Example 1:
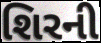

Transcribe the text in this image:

શિરની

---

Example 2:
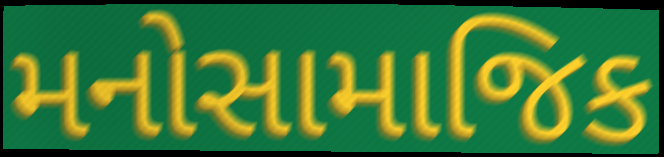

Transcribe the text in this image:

મનોસામાજિક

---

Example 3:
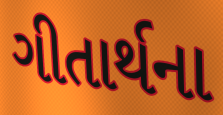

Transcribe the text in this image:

ગીતાર્થના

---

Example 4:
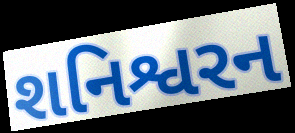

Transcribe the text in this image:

શનિશ્વરન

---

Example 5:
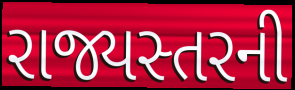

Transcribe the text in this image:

રાજ્યસ્તરની